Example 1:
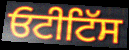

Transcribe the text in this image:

ਓਟੀਟਿੱਸ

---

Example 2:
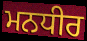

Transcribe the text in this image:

ਮਨਧੀਰ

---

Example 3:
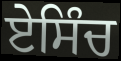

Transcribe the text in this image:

ਏਸਿੰਚ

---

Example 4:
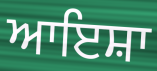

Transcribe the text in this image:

ਆਇਸ਼ਾ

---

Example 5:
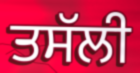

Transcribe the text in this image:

ਤਸੱਲੀ